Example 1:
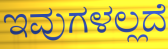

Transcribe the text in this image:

ಇವುಗಳಲ್ಲದೆ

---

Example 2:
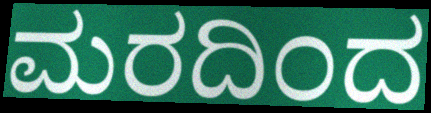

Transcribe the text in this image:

ಮರದಿಂದ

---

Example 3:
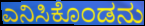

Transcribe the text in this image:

ಎನಿಸಿಕೊಂಡನು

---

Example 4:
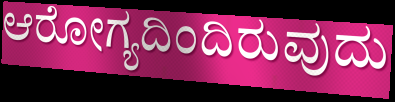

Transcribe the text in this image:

ಆರೋಗ್ಯದಿಂದಿರುವುದು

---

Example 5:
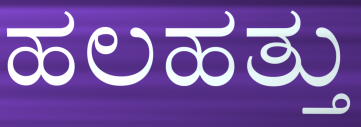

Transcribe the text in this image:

ಹಲಹತ್ತು